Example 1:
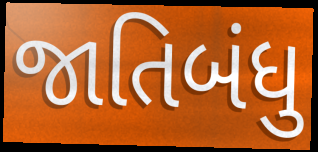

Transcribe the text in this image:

જાતિબંધુ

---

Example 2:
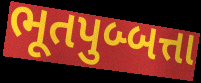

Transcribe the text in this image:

ભૂતપુબ્બત્તા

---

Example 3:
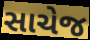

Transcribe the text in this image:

સાચેજ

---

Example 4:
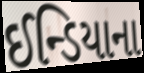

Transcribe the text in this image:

ઈન્ડિયાના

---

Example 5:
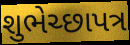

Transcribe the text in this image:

શુભેચ્છાપત્ર